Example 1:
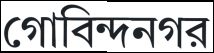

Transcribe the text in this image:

গোবিন্দনগর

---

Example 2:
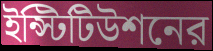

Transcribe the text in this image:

ইন্স্টিটিউশনের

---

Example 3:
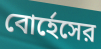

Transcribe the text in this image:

বোর্হেসের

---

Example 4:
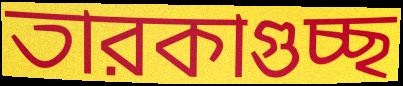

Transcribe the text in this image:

তারকাগুচ্ছ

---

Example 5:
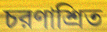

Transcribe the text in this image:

চরণাশ্রিত